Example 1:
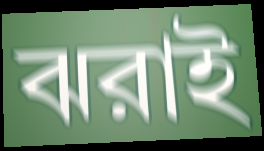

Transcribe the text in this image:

ঝরাই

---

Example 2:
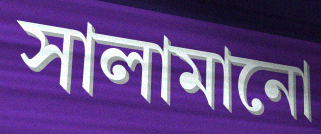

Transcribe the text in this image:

সালামানো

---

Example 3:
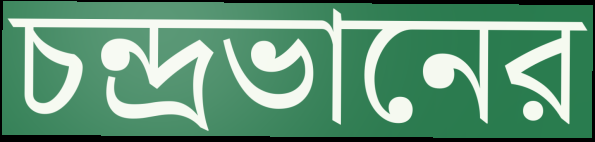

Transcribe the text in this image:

চন্দ্রভানের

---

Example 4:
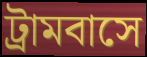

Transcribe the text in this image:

ট্রামবাসে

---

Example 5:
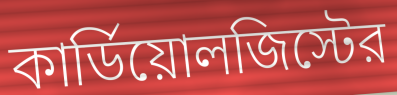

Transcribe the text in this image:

কার্ডিয়োলজিস্টের